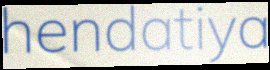
hendatiya